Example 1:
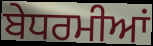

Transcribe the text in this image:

ਬੇਧਰਮੀਆਂ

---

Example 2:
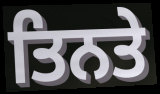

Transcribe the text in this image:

ਤਿਨਤੇ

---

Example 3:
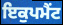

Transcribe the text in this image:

ਇਕੁਪਮੈਂਟ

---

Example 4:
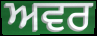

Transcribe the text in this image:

ਅਵਰ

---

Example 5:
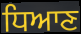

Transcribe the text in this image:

ਧਿਆਣ